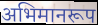
अभिमानरूप